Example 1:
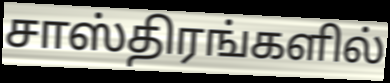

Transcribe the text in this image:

சாஸ்திரங்களில்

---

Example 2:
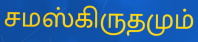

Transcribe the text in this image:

சமஸ்கிருதமும்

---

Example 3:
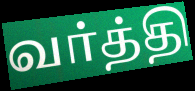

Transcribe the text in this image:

வர்த்தி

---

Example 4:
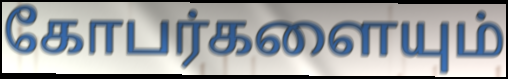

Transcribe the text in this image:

கோபர்களையும்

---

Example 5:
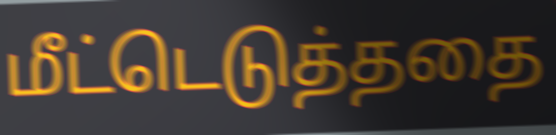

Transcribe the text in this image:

மீட்டெடுத்ததை